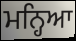
ਮਨ੍ਹਿਆ